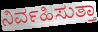
ನಿರ್ವಹಿಸುತ್ತಾ